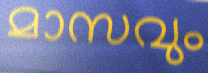
മാസവും